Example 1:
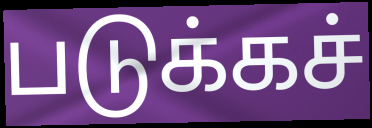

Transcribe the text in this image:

படுக்கச்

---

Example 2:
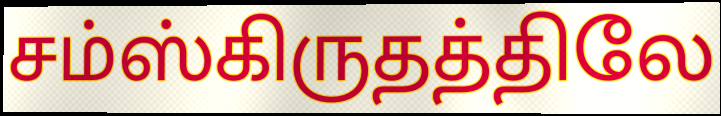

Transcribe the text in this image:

சம்ஸ்கிருதத்திலே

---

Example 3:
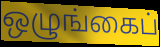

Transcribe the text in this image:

ஒழுங்கைப்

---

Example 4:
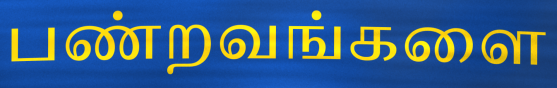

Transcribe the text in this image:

பண்றவங்களை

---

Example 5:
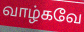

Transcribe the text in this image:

வாழ்கவே